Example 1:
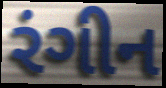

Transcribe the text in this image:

રંગીન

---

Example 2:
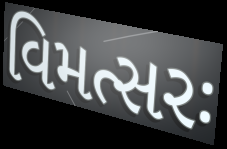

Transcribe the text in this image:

વિમત્સરઃ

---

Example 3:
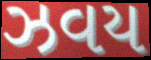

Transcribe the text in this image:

ઝવય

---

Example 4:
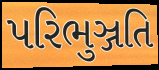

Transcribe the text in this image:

પરિભુઞ્જતિ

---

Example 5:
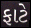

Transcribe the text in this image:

ફાટે